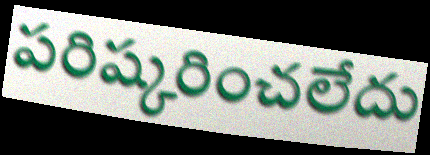
పరిష్కరించలేదు